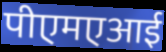
पीएमएआई